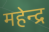
महेन्द्र